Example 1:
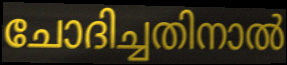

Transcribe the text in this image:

ചോദിച്ചതിനാൽ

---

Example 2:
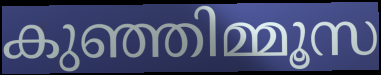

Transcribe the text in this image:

കുഞ്ഞിമ്മൂസ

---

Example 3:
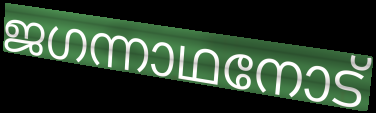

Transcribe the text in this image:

ജഗന്നാഥനോട്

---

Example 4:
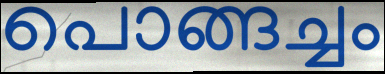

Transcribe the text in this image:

പൊങ്ങച്ചം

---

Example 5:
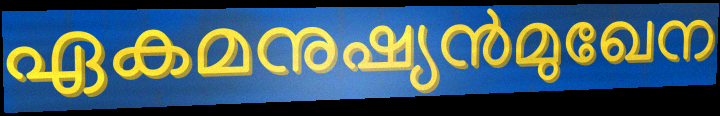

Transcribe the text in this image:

ഏകമനുഷ്യൻമുഖേന